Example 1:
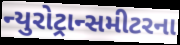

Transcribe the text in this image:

ન્યુરોટ્રાન્સમીટરના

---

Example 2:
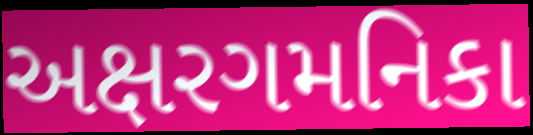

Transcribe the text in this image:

અક્ષરગમનિકા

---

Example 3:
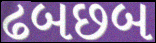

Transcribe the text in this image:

ઢબછબ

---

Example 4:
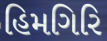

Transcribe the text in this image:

હિમગિરિ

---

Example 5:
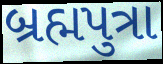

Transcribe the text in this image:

બ્રહ્મપુત્રા